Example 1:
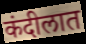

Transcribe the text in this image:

कंदीलात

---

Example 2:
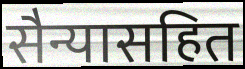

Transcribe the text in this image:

सैन्यासहित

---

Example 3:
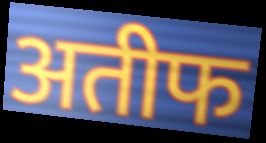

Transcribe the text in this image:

अतीफ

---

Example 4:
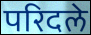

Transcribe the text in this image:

परिदले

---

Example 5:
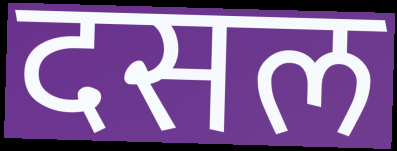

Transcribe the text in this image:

दसल